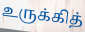
உருக்கித்